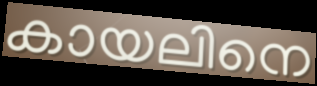
കായലിനെ